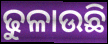
ଢୁଳାଉଛି